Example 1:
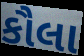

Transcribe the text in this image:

કૌલા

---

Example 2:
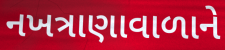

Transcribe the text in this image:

નખત્રાણાવાળાને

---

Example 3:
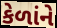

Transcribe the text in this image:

કેળાંને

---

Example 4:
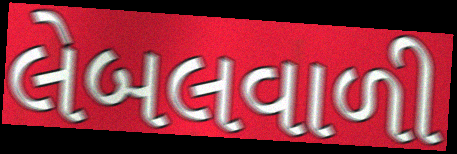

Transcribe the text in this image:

લેબલવાળી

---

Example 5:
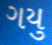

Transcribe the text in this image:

ગયુ